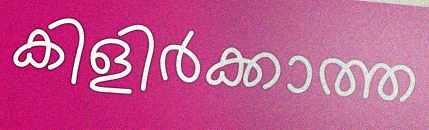
കിളിർക്കാത്ത